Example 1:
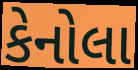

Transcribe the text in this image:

કેનોલા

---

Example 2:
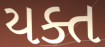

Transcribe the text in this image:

યક્ત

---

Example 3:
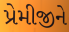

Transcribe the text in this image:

પ્રેમીજીને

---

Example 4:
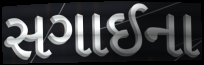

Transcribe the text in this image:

સગાઈના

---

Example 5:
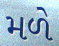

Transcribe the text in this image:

મળે